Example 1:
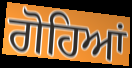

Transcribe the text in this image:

ਗੋਹਿਆਂ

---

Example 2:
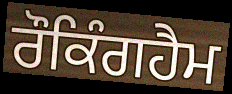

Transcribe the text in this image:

ਰੌਕਿੰਗਹੈਮ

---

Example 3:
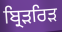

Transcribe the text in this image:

ਬ੍ਰਿੜਰਿੜ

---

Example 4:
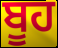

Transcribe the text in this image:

ਬੂਹ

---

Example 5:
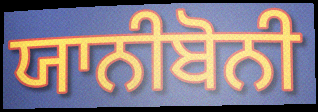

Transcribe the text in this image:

ਯਾਨੀਬੋਨੀ